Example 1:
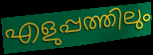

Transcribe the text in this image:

എളുപ്പത്തിലും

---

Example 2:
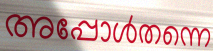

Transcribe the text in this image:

അപ്പോൾതന്നെ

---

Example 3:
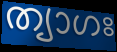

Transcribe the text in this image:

ത്യാഗഃ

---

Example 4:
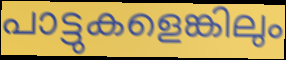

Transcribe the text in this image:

പാട്ടുകളെങ്കിലും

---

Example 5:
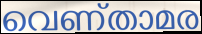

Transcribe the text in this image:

വെണ്താമര